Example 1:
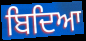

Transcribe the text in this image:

ਬਿਦਿਆ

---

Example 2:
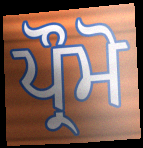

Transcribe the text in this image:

ਪ੍ਰੌਮੋ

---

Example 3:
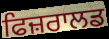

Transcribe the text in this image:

ਫਿਜ਼ਰਾਲਡ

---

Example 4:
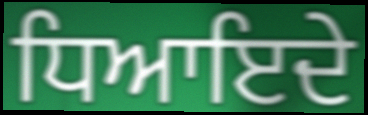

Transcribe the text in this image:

ਧਿਆਇਦੇ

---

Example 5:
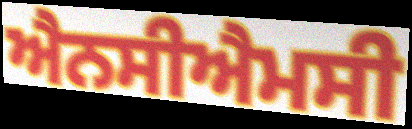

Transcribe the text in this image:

ਐਨਸੀਐਮਸੀ